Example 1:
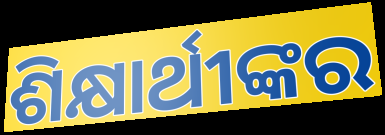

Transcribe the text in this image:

ଶିକ୍ଷାର୍ଥୀଙ୍କର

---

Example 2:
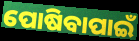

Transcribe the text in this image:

ପୋଷିବାପାଇଁ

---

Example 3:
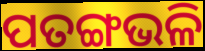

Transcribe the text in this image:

ପତଙ୍ଗଭଳି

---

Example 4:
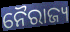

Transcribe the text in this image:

ନୈରାଜ୍ୟ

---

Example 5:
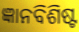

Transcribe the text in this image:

ଜ୍ଞାନବିଶିଷ୍ଟ